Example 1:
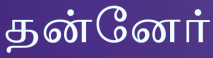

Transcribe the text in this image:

தன்னேர்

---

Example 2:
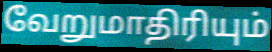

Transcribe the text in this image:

வேறுமாதிரியும்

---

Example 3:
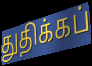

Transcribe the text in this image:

துதிக்கப்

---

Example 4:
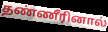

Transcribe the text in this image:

தண்ணீரினால்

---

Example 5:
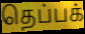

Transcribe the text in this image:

தெப்பக்